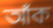
আঁক